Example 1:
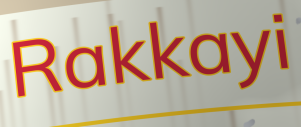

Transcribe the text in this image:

Rakkayi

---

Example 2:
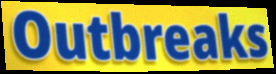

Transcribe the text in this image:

Outbreaks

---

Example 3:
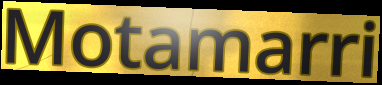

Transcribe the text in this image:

Motamarri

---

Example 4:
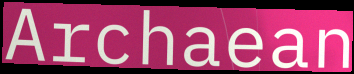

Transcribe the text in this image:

Archaean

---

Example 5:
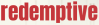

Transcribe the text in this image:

redemptive